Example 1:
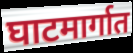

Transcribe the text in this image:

घाटमार्गात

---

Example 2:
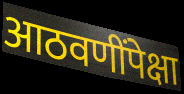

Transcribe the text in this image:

आठवणींपेक्षा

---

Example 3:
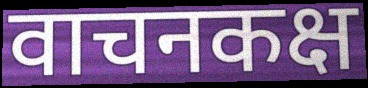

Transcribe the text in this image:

वाचनकक्ष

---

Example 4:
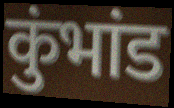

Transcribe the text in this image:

कुंभांड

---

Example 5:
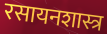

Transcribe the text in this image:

रसायनशास्त्र